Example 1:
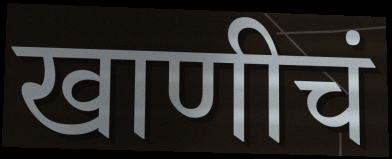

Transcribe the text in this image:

खाणीचं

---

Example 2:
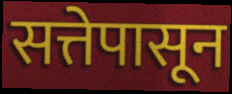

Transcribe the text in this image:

सत्तेपासून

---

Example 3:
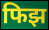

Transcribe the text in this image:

फिझ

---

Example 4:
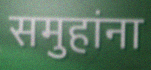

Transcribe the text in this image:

समुहांना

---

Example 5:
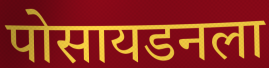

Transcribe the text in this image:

पोसायडनला